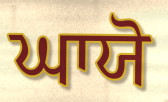
ਘਾਯੋ